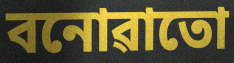
বনোৱাতো